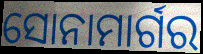
ସୋନାମାର୍ଗର